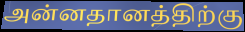
அன்னதானத்திற்கு